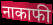
नाकाफी